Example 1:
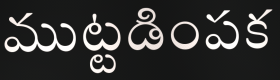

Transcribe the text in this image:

ముట్టడింపక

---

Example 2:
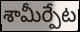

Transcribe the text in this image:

శామీర్పేట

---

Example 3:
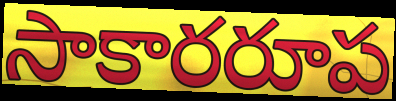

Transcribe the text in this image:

సాకారరూప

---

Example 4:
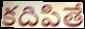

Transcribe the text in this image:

కదిపితే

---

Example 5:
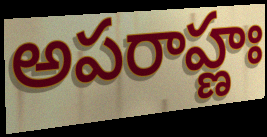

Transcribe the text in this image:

అపరాహ్ణః